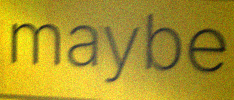
maybe